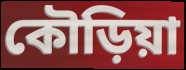
কৌড়িয়া